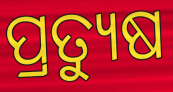
ପ୍ରତ୍ୟୁଷ